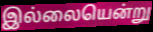
இல்லையென்று